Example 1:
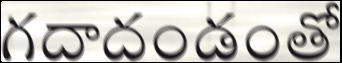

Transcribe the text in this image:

గదాదండంతో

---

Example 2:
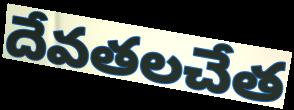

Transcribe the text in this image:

దేవతలచేత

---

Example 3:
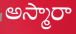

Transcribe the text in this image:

అస్మారా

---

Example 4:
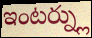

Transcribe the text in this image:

ఇంటర్న్లు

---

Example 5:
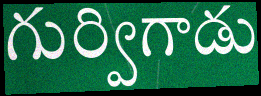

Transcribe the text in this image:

గుర్విగాడు